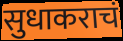
सुधाकराचं